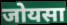
जोयसा